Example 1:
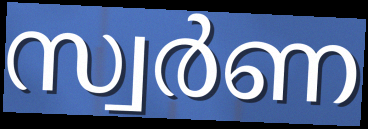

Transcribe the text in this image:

സ്വർണ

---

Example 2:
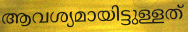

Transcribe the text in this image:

ആവശ്യമായിട്ടുള്ളത്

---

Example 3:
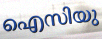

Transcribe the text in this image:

ഐസിയു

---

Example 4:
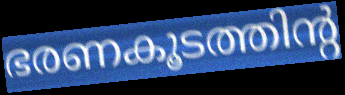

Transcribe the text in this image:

ഭരണകൂടത്തിന്റ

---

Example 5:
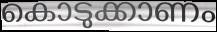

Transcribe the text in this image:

കൊടുക്കാണം